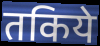
तकिये